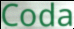
Coda